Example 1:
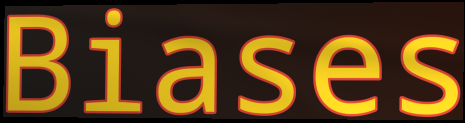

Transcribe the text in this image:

Biases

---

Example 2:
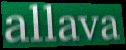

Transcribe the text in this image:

allava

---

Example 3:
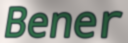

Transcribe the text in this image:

Bener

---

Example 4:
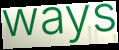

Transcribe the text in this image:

ways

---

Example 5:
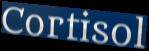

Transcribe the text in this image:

Cortisol